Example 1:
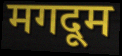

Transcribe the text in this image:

मगदूम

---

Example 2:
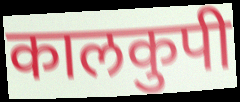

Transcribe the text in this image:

कालकुपी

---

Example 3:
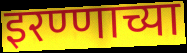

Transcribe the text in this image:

इरण्णाच्या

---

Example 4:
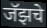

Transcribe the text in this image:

जॅझचे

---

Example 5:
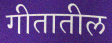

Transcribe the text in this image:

गीतातील